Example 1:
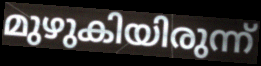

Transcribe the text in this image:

മുഴുകിയിരുന്ന്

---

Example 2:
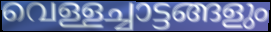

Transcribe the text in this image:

വെള്ളച്ചാട്ടങ്ങളും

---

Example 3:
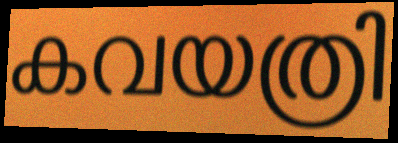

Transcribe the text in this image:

കവയത്രി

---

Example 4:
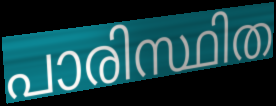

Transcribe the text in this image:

പാരിസ്ഥിത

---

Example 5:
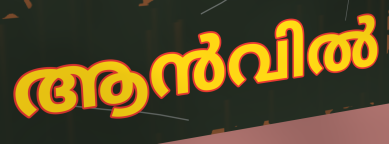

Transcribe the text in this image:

ആൻവിൽ